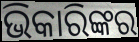
ଭିକାରିଙ୍କର